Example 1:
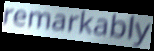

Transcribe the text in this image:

remarkably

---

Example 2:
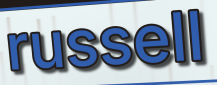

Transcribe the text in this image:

russell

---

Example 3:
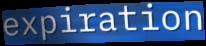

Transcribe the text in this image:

expiration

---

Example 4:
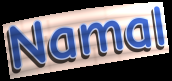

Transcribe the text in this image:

Namal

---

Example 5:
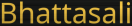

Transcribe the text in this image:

Bhattasali